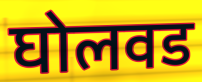
घोलवड